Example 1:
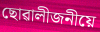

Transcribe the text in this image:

ছোৱালীজনীয়ে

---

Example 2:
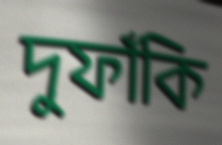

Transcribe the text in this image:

দুফাঁকি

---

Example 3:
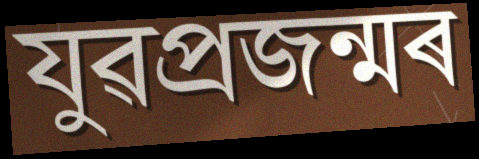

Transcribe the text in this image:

যুৱপ্ৰজন্মৰ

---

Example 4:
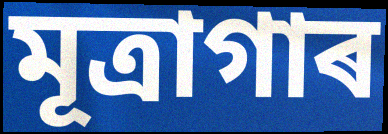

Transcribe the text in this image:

মূত্ৰাগাৰ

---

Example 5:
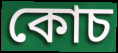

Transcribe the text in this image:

কোচ